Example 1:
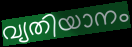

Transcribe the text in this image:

വ്യതിയാനം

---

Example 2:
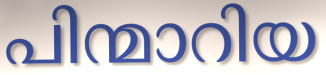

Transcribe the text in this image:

പിന്മാറിയ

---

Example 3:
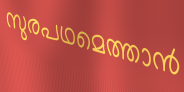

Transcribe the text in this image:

സുരപഥമെത്താൻ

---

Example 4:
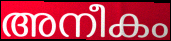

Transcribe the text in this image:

അനീകം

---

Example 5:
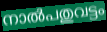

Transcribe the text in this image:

നാൽപതുവട്ടം